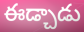
ఈడ్చాడు